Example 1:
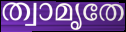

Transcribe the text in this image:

ത്വാമൃതേ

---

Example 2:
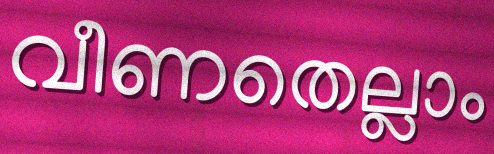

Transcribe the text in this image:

വീണതെല്ലാം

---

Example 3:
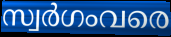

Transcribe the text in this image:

സ്വർഗംവരെ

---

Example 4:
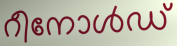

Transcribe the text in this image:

റീനോൾഡ്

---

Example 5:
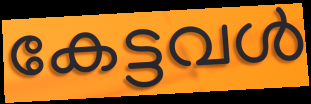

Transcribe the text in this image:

കേട്ടവൾ